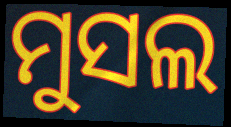
ମୁସଲ